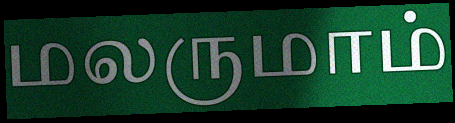
மலருமாம்